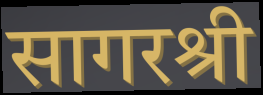
सागरश्री